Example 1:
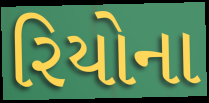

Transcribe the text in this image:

રિયોના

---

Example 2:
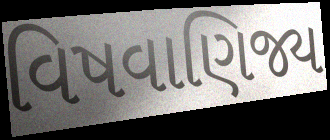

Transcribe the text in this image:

વિષવાણિજ્ય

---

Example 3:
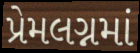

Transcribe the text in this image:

પ્રેમલગ્નમાં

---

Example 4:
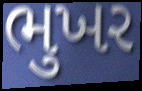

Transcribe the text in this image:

ભુખર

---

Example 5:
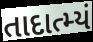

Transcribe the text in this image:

તાદાત્મ્યં